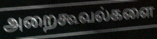
அறைகூவல்களை